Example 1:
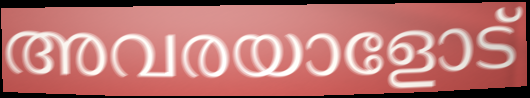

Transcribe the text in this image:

അവരയാളോട്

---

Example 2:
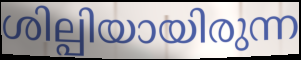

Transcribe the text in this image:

ശില്പിയായിരുന്ന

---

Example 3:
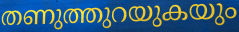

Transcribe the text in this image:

തണുത്തുറയുകയും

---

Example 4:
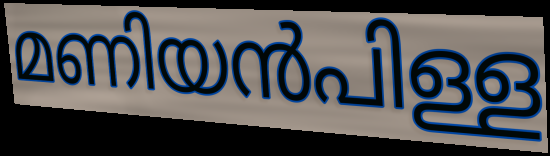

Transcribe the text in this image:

മണിയൻപിള്ള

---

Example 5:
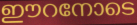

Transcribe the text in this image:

ഈറനോടെ